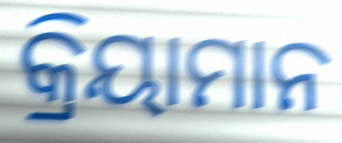
କ୍ରିୟାମାନ